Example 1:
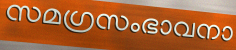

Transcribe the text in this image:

സമഗ്രസംഭാവനാ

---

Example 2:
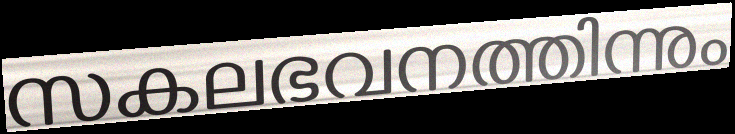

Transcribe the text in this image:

സകലഭവനത്തിന്നും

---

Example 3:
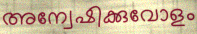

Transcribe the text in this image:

അന്വേഷിക്കുവോളം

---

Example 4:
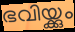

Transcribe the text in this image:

ഭവിയ്ക്കും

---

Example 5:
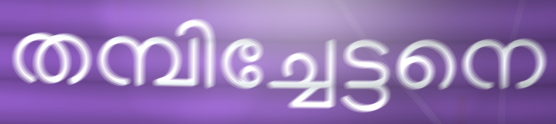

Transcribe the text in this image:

തമ്പിച്ചേട്ടനെ